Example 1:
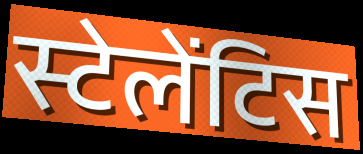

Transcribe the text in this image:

स्टेलेंटिस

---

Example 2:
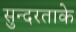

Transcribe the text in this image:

सुन्दरताके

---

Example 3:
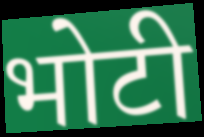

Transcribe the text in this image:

भोटी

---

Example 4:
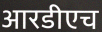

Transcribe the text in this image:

आरडीएच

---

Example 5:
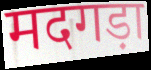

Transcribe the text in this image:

मदगड़ा